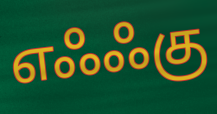
எஃஃகு